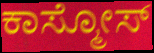
ಕಾಸ್ಮೋಸ್